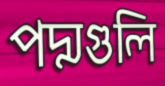
পদ্মগুলি